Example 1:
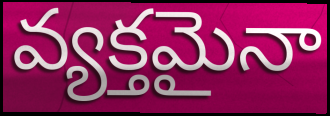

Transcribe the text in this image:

వ్యక్తమైనా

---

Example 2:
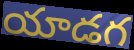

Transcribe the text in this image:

యాడగ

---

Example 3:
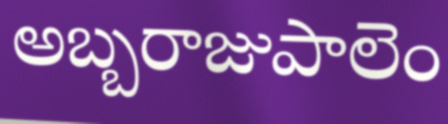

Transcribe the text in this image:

అబ్బరాజుపాలెం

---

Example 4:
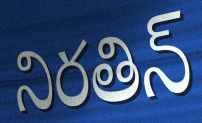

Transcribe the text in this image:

నిరతిన్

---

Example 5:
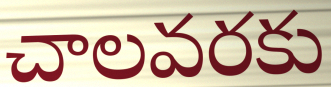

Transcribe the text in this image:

చాలవరకు